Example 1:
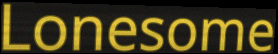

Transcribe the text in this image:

Lonesome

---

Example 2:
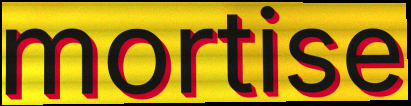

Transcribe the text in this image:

mortise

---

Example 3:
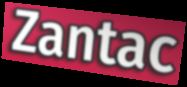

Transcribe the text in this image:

Zantac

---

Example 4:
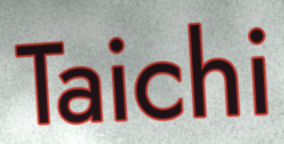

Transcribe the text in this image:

Taichi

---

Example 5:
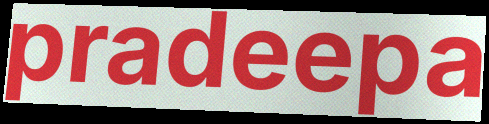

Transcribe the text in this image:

pradeepa